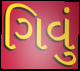
ગિવું